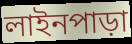
লাইনপাড়া